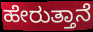
ಹೇರುತ್ತಾನೆ